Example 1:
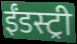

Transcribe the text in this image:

ईंडस्ट्री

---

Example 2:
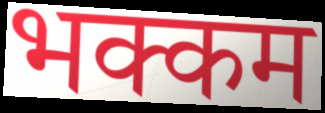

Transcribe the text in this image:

भक्कम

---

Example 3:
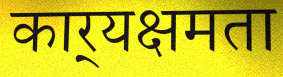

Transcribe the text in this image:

कार्यक्षमता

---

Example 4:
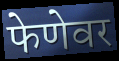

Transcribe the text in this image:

फेणेवर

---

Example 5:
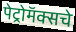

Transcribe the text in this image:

पेट्रोमॅक्सचे